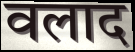
वलाद